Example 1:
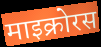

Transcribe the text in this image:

माइक्रोरस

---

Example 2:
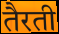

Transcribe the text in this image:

तैरती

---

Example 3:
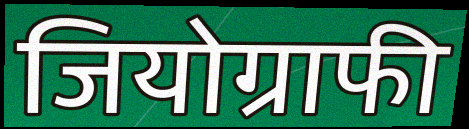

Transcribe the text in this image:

जियोग्राफी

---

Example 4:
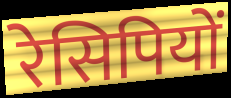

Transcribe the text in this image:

रेसिपियों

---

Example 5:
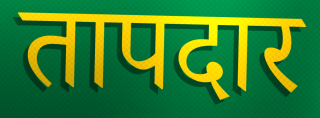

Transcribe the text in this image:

तापदार